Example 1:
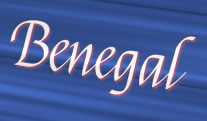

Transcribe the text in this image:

Benegal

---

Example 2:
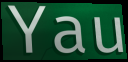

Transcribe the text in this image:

Yau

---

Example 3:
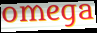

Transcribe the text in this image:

omega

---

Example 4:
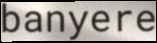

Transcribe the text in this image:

banyere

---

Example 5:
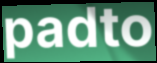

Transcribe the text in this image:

padto